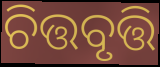
ଚିତ୍ତବୃତ୍ତି